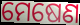
ମେଷେଣ